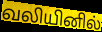
வலியினில்